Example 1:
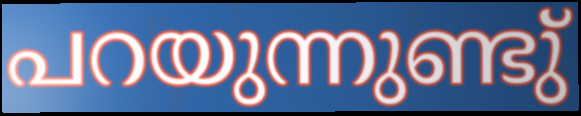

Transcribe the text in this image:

പറയുന്നുണ്ടു്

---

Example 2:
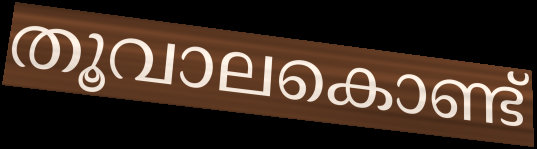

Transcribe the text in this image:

തൂവാലകൊണ്ട്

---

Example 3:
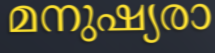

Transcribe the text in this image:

മനുഷ്യരാ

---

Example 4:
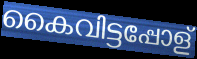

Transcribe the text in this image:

കൈവിട്ടപ്പോള്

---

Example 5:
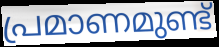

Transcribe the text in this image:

പ്രമാണമുണ്ട്